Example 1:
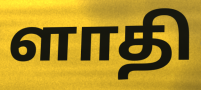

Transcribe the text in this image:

ளாதி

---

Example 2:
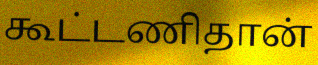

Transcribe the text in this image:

கூட்டணிதான்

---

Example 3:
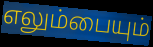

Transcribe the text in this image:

எலும்பையும்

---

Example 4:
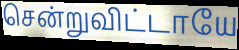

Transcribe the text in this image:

சென்றுவிட்டாயே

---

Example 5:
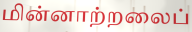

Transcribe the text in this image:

மின்னாற்றலைப்